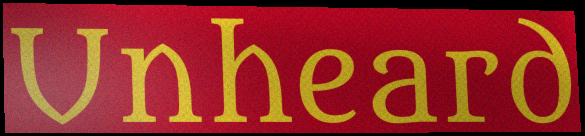
Unheard